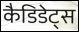
कैडिडेट्स